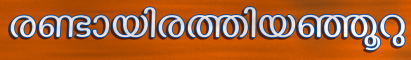
രണ്ടായിരത്തിയഞ്ഞൂറു